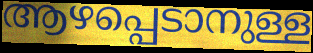
ആഴപ്പെടാനുള്ള